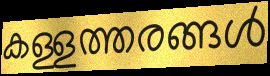
കള്ളത്തരങ്ങൾ